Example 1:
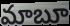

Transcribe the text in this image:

మాబూ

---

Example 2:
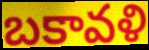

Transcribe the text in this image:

బకావళి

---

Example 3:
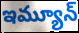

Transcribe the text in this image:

ఇమ్యూన్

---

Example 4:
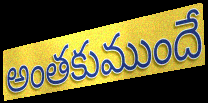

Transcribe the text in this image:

అంతకుముందే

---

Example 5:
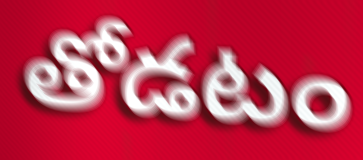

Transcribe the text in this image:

తోడటం